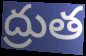
ద్రుత